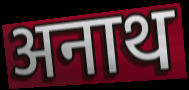
अनाथ